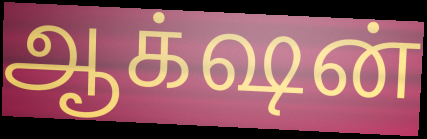
ஆக்‌ஷன்